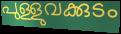
പുള്ളുവക്കുടം